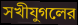
সখীযুগলের